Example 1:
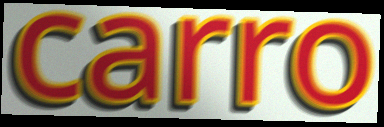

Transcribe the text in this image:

carro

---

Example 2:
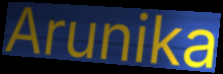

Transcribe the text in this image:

Arunika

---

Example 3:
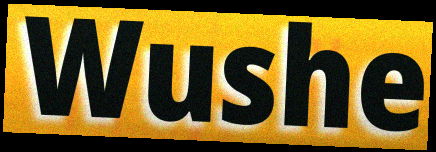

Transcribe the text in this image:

Wushe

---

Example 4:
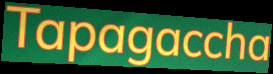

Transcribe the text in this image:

Tapagaccha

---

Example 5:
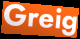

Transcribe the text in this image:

Greig